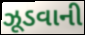
ઝૂડવાની